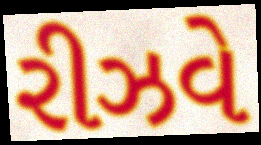
રીઝવે